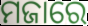
ମଜାରେ